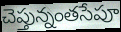
చెప్తున్నంతసేపూ